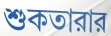
শুকতারার